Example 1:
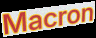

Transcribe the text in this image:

Macron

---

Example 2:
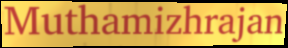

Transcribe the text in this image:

Muthamizhrajan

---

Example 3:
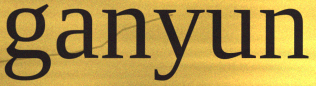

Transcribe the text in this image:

ganyun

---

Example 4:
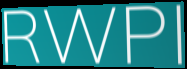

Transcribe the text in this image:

RWPI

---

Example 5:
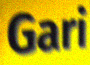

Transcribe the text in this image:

Gari